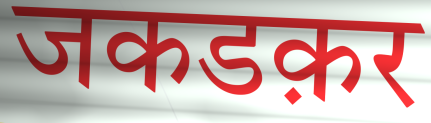
जकडक़र